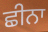
ਛੀਨਾ